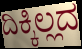
ದಿಕ್ಕಿಲ್ಲದ